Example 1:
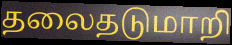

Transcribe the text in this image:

தலைதடுமாறி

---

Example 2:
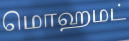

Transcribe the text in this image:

மொஹமட்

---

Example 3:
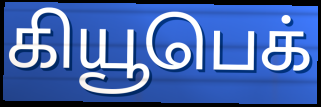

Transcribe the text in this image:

கியூபெக்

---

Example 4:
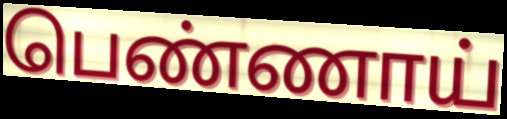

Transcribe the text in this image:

பெண்ணாய்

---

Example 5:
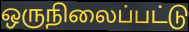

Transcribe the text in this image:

ஒருநிலைப்பட்டு